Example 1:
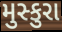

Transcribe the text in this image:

મુસ્કુરા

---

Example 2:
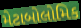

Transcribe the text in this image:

મેટાબોલોમિક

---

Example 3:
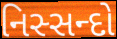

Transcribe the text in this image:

નિસ્સન્દો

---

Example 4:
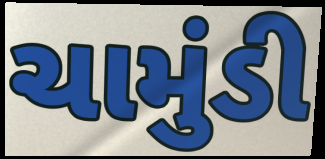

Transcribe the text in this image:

ચામુંડી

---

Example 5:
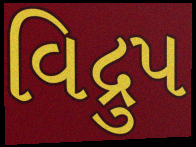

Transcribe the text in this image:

વિદ્રુપ